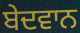
ਬੇਦਵਾਨ